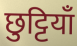
छुट्टियाँ